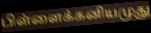
பிள்ளைக்கனியமுது